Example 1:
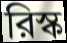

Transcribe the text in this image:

রিস্ক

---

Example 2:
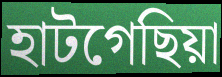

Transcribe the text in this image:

হাটগেছিয়া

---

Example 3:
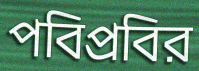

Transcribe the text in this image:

পবিপ্রবির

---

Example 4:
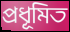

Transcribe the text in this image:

প্রধূমিত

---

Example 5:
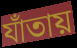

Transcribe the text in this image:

যাঁতায়